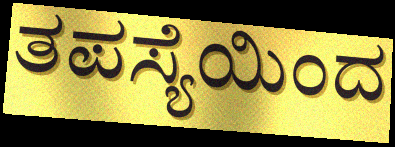
ತಪಸ್ಯೆಯಿಂದ